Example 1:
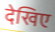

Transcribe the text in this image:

देखिए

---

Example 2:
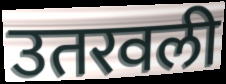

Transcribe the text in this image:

उतरवली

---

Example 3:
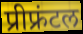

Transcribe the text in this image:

प्रीफ्रंटल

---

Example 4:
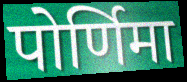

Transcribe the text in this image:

पोर्णिमा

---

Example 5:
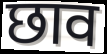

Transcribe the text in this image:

छाव